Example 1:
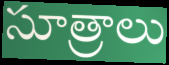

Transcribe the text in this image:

సూత్రాలు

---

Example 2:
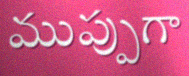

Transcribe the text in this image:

ముప్పుగా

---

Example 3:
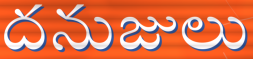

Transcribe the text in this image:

దనుజులు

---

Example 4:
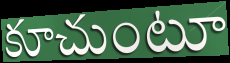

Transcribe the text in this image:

కూచుంటూ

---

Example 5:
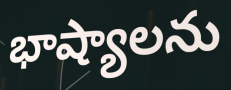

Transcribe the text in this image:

భాష్యాలను